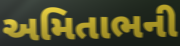
અમિતાભની